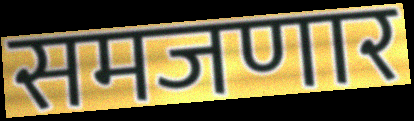
समजणार